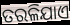
ତରଳିଯାଏ